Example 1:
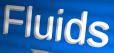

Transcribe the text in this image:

Fluids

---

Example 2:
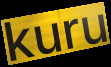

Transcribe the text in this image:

kuru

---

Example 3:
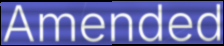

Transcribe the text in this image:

Amended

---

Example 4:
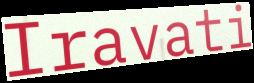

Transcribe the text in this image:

Iravati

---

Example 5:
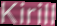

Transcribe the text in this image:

Kirill